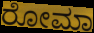
ರೋಮಾ